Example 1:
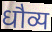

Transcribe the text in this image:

धौव्य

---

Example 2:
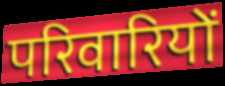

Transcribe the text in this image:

परिवारियों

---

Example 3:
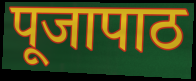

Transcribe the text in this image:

पूजापाठ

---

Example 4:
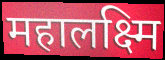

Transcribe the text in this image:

महालक्ष्मि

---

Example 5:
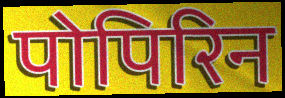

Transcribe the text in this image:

पोपिरिन